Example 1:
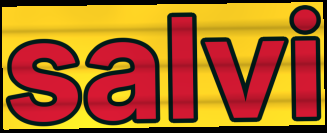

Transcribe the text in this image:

salvi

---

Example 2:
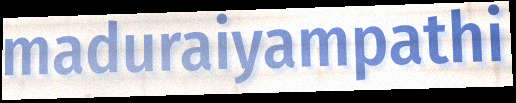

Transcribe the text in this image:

maduraiyampathi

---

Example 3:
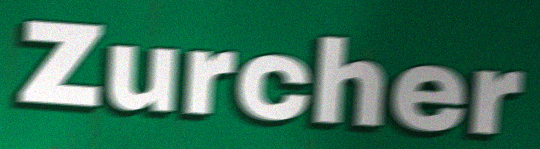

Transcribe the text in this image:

Zurcher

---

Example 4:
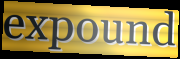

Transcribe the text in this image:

expound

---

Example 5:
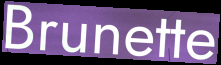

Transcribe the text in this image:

Brunette